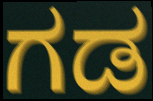
ಗಡ